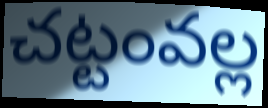
చట్టంవల్ల